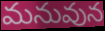
మనువున